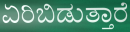
ಏರಿಬಿಡುತ್ತಾರೆ